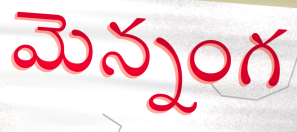
మెన్నంగ